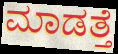
ಮಾಡತ್ತೆ